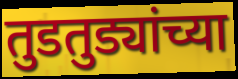
तुडतुड्यांच्या